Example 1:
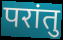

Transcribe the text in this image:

परांतु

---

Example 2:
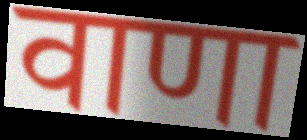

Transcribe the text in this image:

वाणा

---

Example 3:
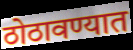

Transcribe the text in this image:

ठोठावण्यात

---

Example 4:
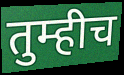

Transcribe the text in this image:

तुम्हीच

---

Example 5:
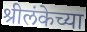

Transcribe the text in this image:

श्रीलंकेच्या